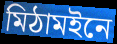
মিঠামইনে